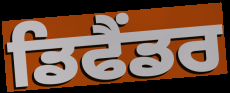
ਡਿਫੈਂਡਰ